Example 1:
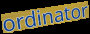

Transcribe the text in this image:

ordinator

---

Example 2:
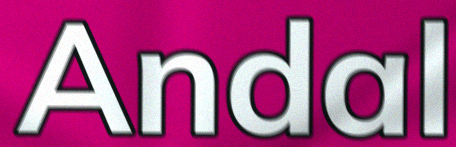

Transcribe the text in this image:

Andal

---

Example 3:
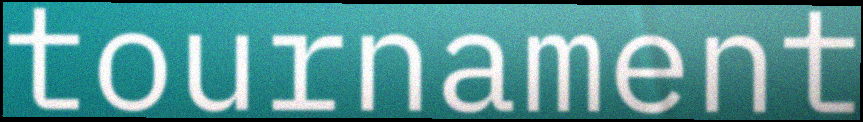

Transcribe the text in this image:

tournament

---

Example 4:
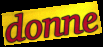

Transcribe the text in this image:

donne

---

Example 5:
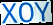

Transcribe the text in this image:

XOY